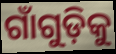
ଗାଁଗୁଡ଼ିକୁ